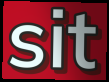
sit